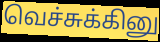
வெச்சுக்கினு